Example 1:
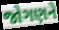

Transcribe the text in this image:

જોગણને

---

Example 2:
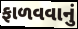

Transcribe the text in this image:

ફાળવવાનું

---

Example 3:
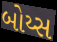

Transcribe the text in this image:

બોય્સ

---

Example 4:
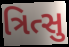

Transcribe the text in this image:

ત્રિત્સુ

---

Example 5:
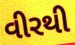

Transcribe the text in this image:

વીરથી